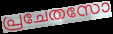
പ്രചേതസോ